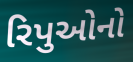
રિપુઓનો